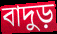
বাদুড়